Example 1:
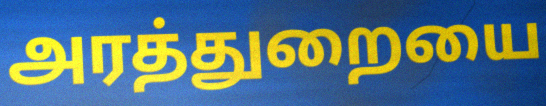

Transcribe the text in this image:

அரத்துறையை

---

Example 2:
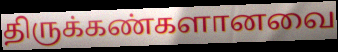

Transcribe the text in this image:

திருக்கண்களானவை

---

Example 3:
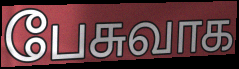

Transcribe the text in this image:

பேசுவாக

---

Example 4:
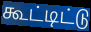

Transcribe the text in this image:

கூட்டிட்டு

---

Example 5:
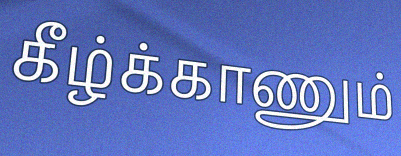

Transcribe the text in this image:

கீழ்க்காணும்